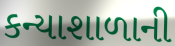
કન્યાશાળાની